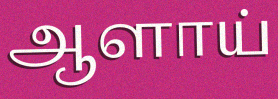
ஆளாய்